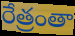
రేత్రంతా